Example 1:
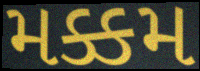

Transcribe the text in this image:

મક્કમ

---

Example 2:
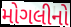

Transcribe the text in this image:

મોગલીનો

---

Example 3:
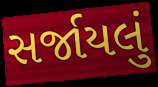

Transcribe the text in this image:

સર્જાયલું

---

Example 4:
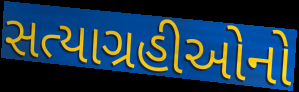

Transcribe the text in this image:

સત્યાગ્રહીઓનો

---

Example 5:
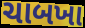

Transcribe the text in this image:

ચાબખા